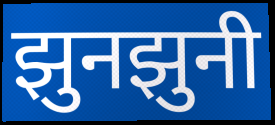
झुनझुनी